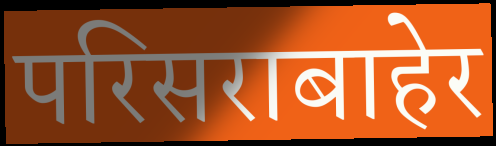
परिसराबाहेर